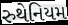
રુથેનિયમ